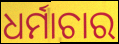
ଧର୍ମାଚାର